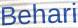
Behari